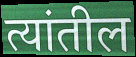
त्यांतील